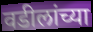
वडीलांच्या